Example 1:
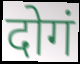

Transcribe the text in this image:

दोगं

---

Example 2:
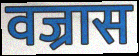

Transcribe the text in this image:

वज्रास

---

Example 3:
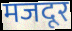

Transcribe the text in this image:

मजदूर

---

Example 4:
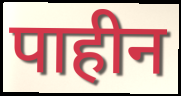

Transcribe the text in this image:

पाहीन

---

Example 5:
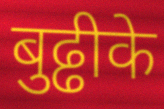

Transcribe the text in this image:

बुढ्ढीके